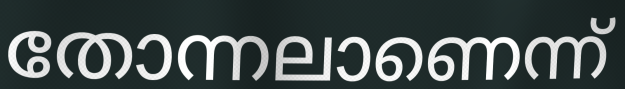
തോന്നലാണെന്ന്